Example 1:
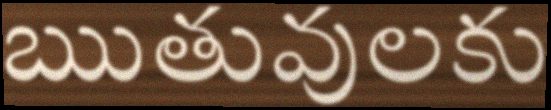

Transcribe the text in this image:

ఋతువులకు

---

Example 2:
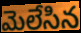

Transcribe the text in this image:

మెలేసిన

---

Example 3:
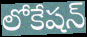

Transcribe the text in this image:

లోకేషన్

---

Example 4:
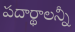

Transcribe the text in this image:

పదార్థాలన్నీ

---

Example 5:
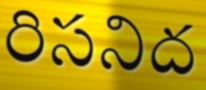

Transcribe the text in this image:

రిసనిద